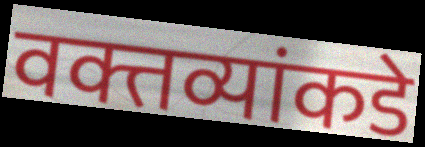
वक्तव्यांकडे